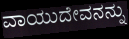
ವಾಯುದೇವನನ್ನು